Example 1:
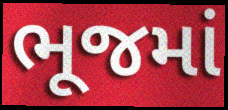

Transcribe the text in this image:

ભૂજમાં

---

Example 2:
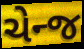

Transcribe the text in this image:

ચેન્જ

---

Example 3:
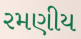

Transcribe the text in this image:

રમણીય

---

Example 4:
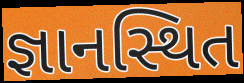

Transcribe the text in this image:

જ્ઞાનસ્થિત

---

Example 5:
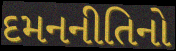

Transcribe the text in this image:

દમનનીતિનો